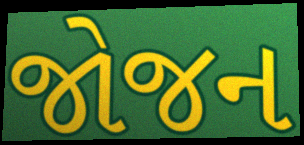
જોજન